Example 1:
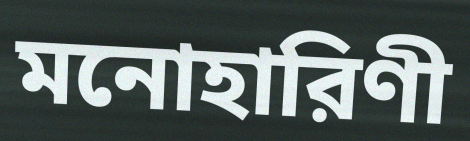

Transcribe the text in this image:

মনোহারিণী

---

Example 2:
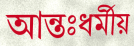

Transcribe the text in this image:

আন্তঃধর্মীয়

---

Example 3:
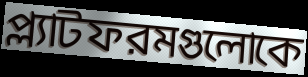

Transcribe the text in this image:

প্ল্যাটফরমগুলোকে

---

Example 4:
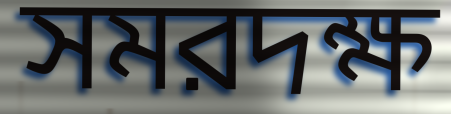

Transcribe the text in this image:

সমরদক্ষ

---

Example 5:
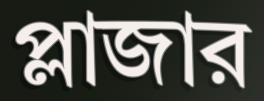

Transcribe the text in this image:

প্লাজার